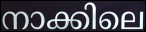
നാക്കിലെ